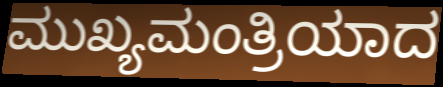
ಮುಖ್ಯಮಂತ್ರಿಯಾದ